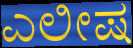
ಎಲೀಷ